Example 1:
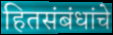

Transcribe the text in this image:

हितसंबंधांचे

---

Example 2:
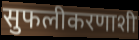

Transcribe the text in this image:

सुफलीकरणाशी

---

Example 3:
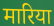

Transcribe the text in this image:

मारिया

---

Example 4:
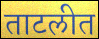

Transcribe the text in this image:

ताटलीत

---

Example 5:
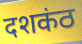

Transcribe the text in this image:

दशकंठ